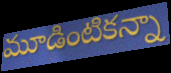
మూడింటికన్నా